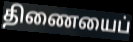
திணையைப்